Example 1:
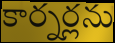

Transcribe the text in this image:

కార్నర్లను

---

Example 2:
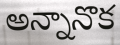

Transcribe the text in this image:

అన్నానొక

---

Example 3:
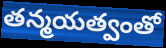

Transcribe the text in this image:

తన్మయత్వంతో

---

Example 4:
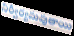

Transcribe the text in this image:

నిర్వీర్యమవుతాయి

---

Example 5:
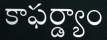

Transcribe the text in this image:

కాఫర్డ్యాం